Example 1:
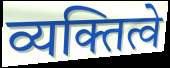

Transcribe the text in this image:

व्यक्तित्वे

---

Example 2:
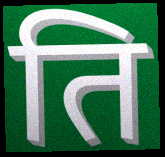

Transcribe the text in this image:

ति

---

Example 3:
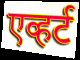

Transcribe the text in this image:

एव्हर्ट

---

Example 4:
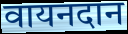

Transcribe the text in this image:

वायनदान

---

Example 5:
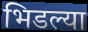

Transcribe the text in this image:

भिडल्या